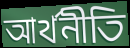
আর্থনীতি